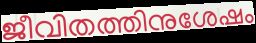
ജീവിതത്തിനുശേഷം